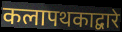
कलापथकाद्वारे